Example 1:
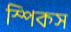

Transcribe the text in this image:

স্পিকস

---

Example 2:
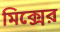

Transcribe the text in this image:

মিক্সের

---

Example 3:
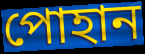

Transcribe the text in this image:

পোহান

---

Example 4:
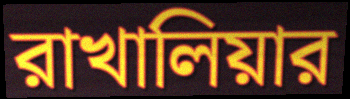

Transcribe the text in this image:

রাখালিয়ার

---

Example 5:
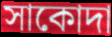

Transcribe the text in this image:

সাকোদা